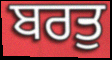
ਬਰਤੁ